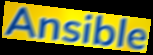
Ansible